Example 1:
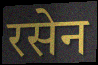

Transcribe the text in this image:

रसेन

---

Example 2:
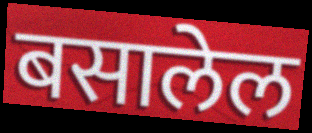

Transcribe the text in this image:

बसालेल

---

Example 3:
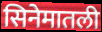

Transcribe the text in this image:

सिनेमातली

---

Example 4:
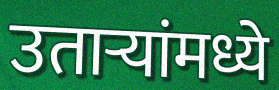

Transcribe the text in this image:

उतार्‍यांमध्ये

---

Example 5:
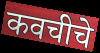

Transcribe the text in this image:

कवचीचे